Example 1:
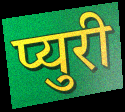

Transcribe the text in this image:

प्युरी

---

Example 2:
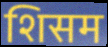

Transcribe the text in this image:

शिसम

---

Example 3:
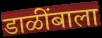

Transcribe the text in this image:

डाळींबाला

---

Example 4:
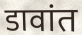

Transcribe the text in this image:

डावांत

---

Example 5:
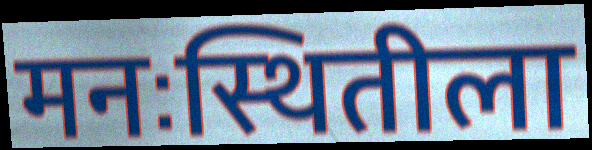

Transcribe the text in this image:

मनःस्थितीला